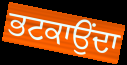
ਭਟਕਾਉਂਦਾ